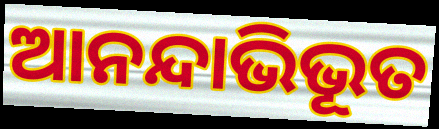
ଆନନ୍ଦାଭିଭୂତ